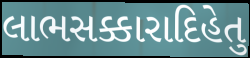
લાભસક્કારાદિહેતુ